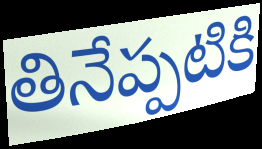
తినేప్పటికి